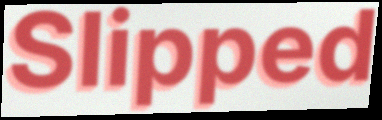
Slipped